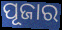
ପୂଜାର